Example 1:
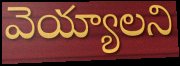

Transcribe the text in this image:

వెయ్యాలని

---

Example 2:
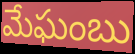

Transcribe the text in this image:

మేఘంబు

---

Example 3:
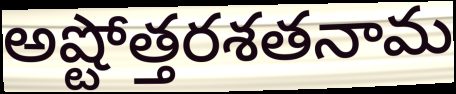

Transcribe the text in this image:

అష్టోత్తరశతనామ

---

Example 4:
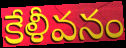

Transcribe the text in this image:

కేళీవనం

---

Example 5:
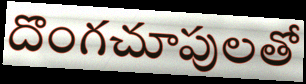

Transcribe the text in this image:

దొంగచూపులతో